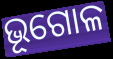
ଭୂଗୋଳ